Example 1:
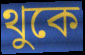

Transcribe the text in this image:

থুকে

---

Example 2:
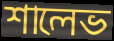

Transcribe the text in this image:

শালেভ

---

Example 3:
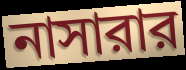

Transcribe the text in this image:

নাসারার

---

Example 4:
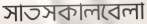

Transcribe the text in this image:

সাতসকালবেলা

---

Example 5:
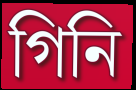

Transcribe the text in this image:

গিনি